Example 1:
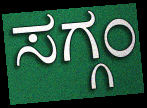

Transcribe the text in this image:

ಸಗ್ಗಂ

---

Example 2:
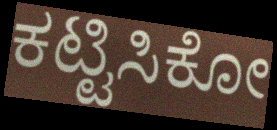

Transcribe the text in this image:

ಕಟ್ಟಿಸಿಕೋ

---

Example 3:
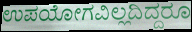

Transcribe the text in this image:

ಉಪಯೋಗವಿಲ್ಲದಿದ್ದರೂ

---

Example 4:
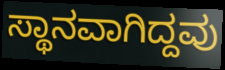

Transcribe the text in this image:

ಸ್ಥಾನವಾಗಿದ್ದವು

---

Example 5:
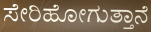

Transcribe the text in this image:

ಸೇರಿಹೋಗುತ್ತಾನೆ